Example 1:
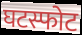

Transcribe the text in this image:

घटस्फोट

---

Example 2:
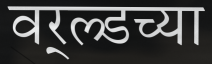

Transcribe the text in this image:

वर्ल्डच्या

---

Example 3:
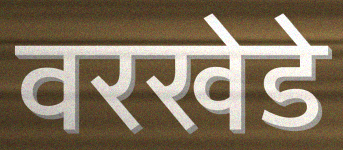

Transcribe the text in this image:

वरखेडे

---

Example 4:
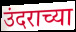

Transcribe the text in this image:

उंदराच्या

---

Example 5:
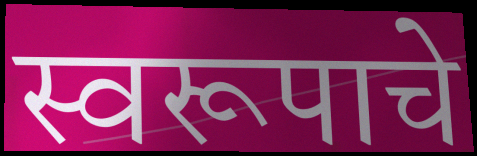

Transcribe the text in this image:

स्वरूपाचे